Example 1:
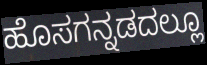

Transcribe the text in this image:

ಹೊಸಗನ್ನಡದಲ್ಲೂ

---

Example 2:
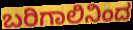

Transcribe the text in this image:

ಬರಿಗಾಲಿನಿಂದ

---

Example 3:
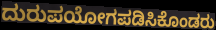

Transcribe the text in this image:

ದುರುಪಯೋಗಪಡಿಸಿಕೊಂಡರು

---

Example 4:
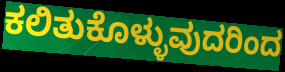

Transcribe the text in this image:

ಕಲಿತುಕೊಳ್ಳುವುದರಿಂದ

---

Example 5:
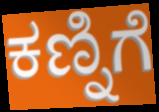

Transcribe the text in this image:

ಕಣ್ನಿಗೆ